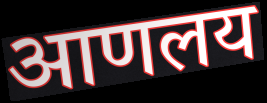
आणलय